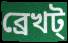
ব্রেখট্